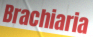
Brachiaria